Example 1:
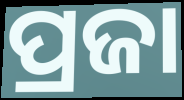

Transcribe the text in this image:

ପ୍ରଜା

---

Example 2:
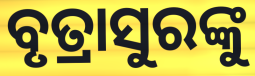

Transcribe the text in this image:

ବୃତ୍ରାସୁରଙ୍କୁ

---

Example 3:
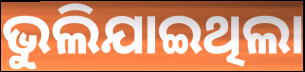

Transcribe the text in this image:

ଭୁଲିଯାଇଥିଲା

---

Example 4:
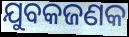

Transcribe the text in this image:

ଯୁବକଜଣକ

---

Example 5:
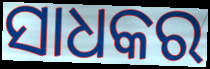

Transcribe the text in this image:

ସାଧକର